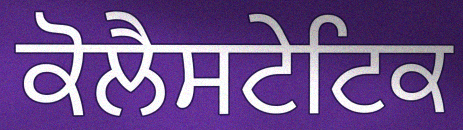
ਕੋਲੈਸਟੇਟਿਕ